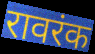
रावरंक